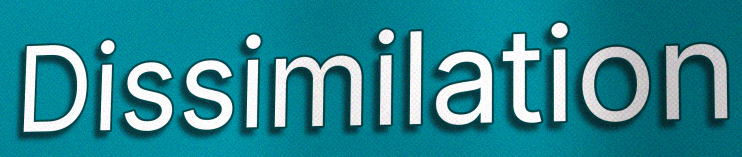
Dissimilation